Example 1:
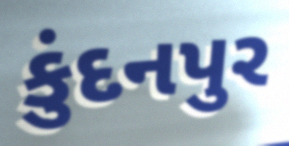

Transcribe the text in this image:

કુંદનપુર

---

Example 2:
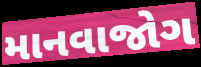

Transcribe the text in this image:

માનવાજોગ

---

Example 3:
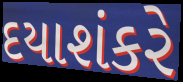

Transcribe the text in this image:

દયાશંકરે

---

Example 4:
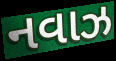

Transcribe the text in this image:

નવાઝ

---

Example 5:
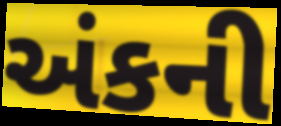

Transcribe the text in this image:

અંકની